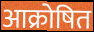
आक्रोषित